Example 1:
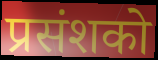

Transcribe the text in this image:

प्रसंशको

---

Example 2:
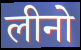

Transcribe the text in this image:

लीनो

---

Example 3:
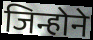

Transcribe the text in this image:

जिन्होने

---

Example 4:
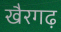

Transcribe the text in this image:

खैरगढ़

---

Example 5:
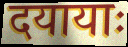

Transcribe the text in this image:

दयायाः